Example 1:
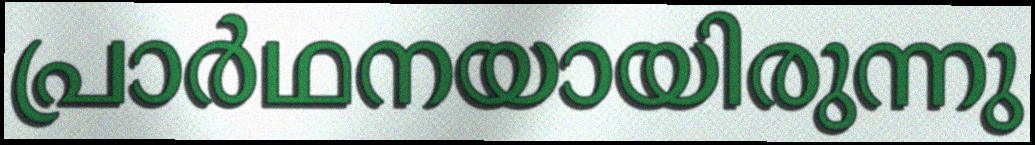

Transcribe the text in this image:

പ്രാർഥനയായിരുന്നു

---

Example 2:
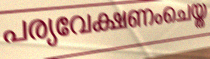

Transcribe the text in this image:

പര്യവേക്ഷണംചെയ്ത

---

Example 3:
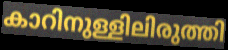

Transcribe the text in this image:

കാറിനുള്ളിലിരുത്തി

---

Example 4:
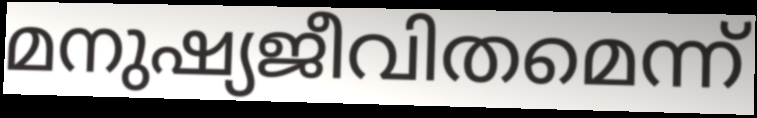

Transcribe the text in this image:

മനുഷ്യജീവിതമെന്ന്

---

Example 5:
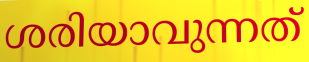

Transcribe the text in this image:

ശരിയാവുന്നത്